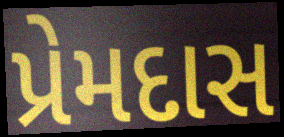
પ્રેમદાસ